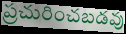
ప్రచురించబడవు